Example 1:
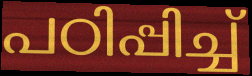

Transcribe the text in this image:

പഠിപ്പിച്ച്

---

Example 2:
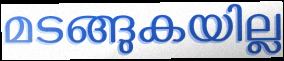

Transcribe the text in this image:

മടങ്ങുകയില്ല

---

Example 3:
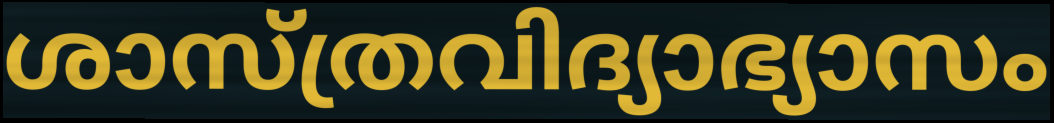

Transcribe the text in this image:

ശാസ്ത്രവിദ്യാഭ്യാസം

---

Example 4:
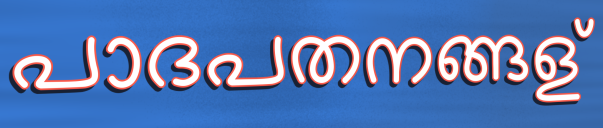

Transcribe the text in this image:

പാദപതനങ്ങള്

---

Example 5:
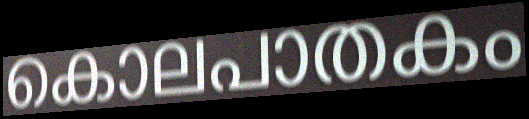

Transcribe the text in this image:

കൊലപാതകം